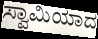
ಸ್ವಾಮಿಯಾದ